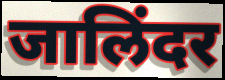
जालिंदर